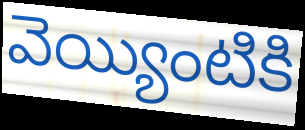
వెయ్యింటికి